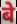
बे